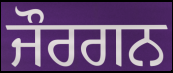
ਜੌਰਗਨ